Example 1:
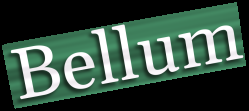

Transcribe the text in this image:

Bellum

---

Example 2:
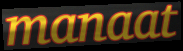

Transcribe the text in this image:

manaat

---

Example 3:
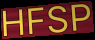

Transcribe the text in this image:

HFSP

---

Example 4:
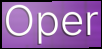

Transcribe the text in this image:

Oper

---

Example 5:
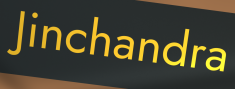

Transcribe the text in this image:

Jinchandra